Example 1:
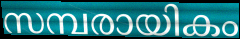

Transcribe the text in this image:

സമ്പരായികം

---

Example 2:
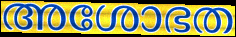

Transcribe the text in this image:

അശോഭത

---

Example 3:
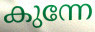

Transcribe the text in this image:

കുന്നേ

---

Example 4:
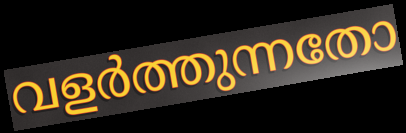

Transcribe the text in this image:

വളർത്തുന്നതോ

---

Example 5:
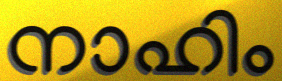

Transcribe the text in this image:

നാഹിം